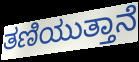
ತಣಿಯುತ್ತಾನೆ